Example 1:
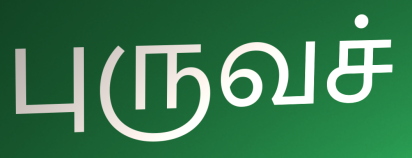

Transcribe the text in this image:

புருவச்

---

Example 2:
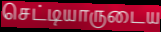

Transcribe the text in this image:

செட்டியாருடைய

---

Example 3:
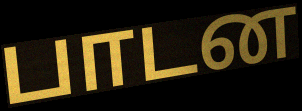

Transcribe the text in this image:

பாடன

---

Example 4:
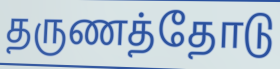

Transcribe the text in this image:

தருணத்தோடு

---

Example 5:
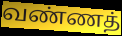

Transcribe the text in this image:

வண்ணத்